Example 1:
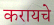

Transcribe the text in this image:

करायचे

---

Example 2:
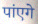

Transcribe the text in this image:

पांएगे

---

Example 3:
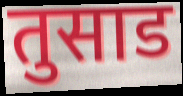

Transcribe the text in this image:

तुसाड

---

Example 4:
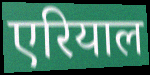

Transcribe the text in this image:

एरियाल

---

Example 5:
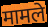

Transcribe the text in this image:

मामले